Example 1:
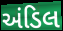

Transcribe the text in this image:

અંડિલ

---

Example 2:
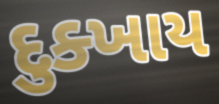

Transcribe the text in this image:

દુક્ખાય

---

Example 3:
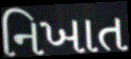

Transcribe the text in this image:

નિખાત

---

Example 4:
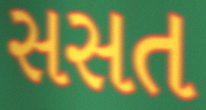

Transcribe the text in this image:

સસત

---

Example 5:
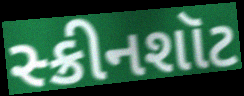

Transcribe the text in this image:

સ્ક્રીનશૉટ